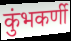
कुंभकर्णी